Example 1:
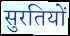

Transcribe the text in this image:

सुरतियों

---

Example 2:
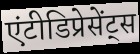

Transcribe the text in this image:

एंटीडिप्रेसेंट्स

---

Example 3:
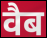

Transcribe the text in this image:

वैब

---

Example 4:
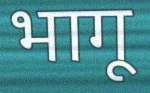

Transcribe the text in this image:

भागू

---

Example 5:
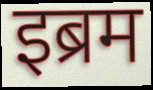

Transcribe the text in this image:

इब्रम